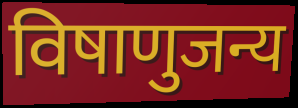
विषाणुजन्य